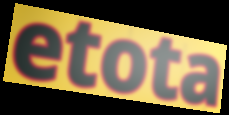
etota